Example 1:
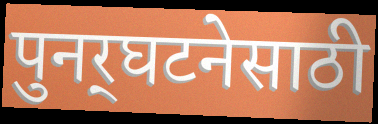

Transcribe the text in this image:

पुनर्घटनेसाठी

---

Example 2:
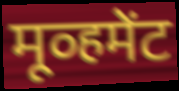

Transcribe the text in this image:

मूव्हमेंट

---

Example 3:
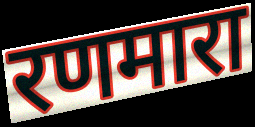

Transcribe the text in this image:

रणमारा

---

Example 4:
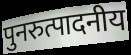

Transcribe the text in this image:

पुनरुत्पादनीय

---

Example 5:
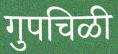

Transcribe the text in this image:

गुपचिळी